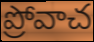
ప్రోవాచ